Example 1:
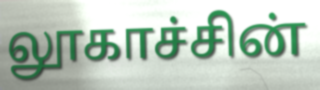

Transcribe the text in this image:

லூகாச்சின்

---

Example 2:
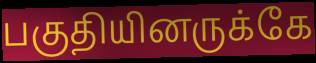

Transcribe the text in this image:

பகுதியினருக்கே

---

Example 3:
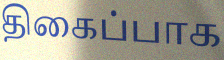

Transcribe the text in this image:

திகைப்பாக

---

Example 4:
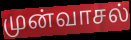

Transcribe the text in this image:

முன்வாசல்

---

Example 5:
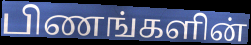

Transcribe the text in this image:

பிணங்களின்